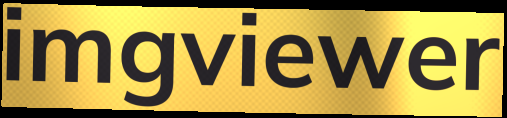
imgviewer